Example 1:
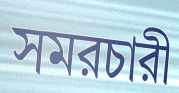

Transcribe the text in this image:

সমরচারী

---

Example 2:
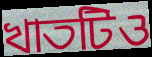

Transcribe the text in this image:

খাতটিও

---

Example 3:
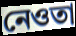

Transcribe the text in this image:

নেওতা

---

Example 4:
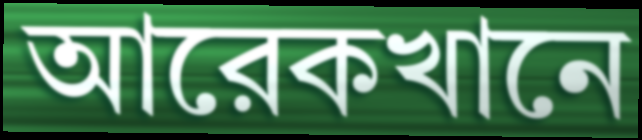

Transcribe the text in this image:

আরেকখানে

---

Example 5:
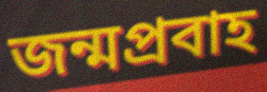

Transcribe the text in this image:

জন্মপ্রবাহ